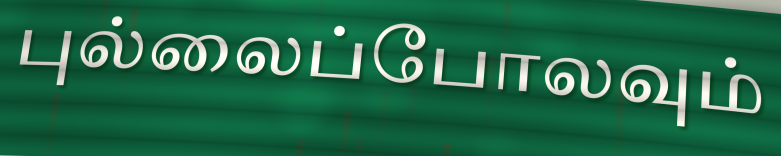
புல்லைப்போலவும்